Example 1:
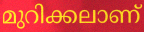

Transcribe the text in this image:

മുറിക്കലാണ്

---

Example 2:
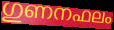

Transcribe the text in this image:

ഗുണനഫലം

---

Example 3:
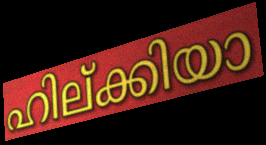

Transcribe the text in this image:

ഹില്ക്കിയാ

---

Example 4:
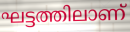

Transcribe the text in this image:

ഘട്ടത്തിലാണ്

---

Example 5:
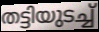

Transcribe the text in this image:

തട്ടിയുടച്ച്